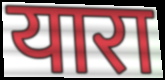
यारा